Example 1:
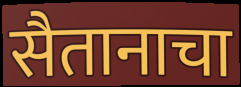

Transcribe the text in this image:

सैतानाचा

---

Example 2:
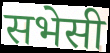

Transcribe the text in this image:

सभेसी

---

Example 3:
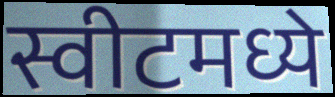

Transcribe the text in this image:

स्वीटमध्ये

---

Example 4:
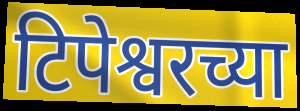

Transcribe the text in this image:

टिपेश्वरच्या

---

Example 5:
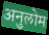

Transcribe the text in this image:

अनुलोम